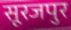
सूरजपुर